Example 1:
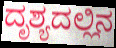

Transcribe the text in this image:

ದೃಶ್ಯದಲ್ಲಿನ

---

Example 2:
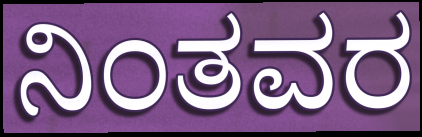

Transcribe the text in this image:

ನಿಂತವರ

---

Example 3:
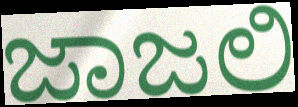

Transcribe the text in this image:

ಜಾಜಲಿ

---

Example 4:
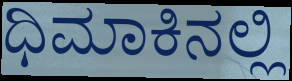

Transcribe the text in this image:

ಧಿಮಾಕಿನಲ್ಲಿ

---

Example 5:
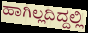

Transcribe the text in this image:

ಹಾಗಿಲ್ಲದಿದ್ದಲ್ಲಿ